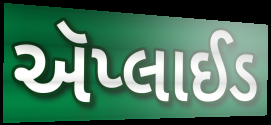
ઍપ્લાઈડ